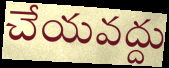
చేయవద్దు